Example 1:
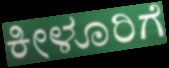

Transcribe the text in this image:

ಕೀಳೂರಿಗೆ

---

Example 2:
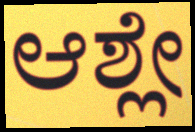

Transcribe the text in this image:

ಆಶ್ಲೇ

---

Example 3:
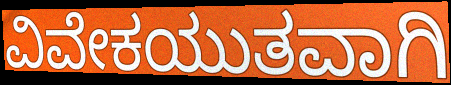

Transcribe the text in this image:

ವಿವೇಕಯುತವಾಗಿ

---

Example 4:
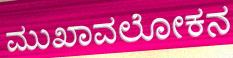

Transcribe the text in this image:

ಮುಖಾವಲೋಕನ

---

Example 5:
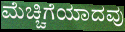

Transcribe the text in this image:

ಮೆಚ್ಚಿಗೆಯಾದವು